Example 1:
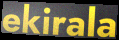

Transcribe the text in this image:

ekirala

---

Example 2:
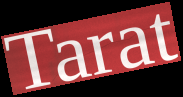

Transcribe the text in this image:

Tarat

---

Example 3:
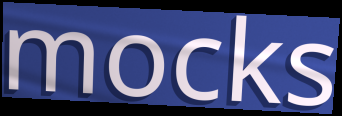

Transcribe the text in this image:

mocks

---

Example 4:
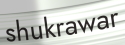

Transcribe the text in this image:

shukrawar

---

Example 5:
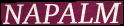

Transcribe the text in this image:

NAPALM